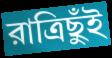
রাত্রিছুঁই